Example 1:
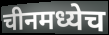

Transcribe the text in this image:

चीनमध्येच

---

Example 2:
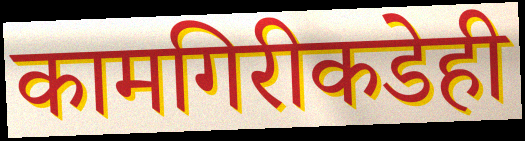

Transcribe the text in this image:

कामगिरीकडेही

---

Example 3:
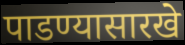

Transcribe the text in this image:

पाडण्यासारखे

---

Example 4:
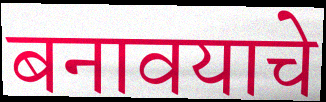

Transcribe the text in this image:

बनावयाचे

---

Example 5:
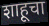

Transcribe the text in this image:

शाहूचा